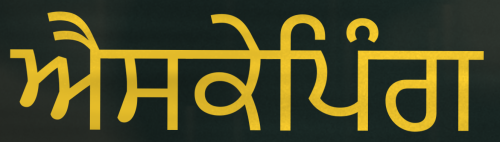
ਐਸਕੇਪਿੰਗ